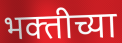
भक्‍तीच्या